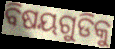
ବିଷୟଗୁଡିକୁ